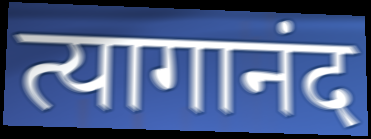
त्यागानंद